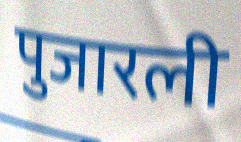
पुजारली